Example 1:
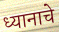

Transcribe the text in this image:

ध्यानाचे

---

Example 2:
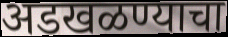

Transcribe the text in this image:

अडखळण्याचा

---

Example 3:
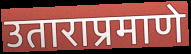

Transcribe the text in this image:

उताराप्रमाणे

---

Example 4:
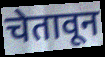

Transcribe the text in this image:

चेतावून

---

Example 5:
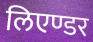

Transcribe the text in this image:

लिएण्डर